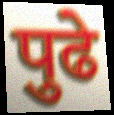
पुढे